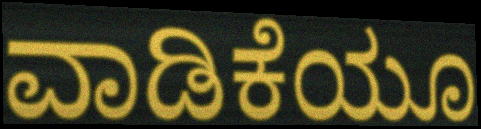
ವಾಡಿಕೆಯೂ